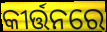
କୀର୍ତ୍ତନରେ